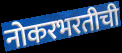
नोकरभरतीची